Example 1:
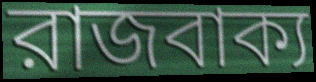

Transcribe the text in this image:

রাজবাক্য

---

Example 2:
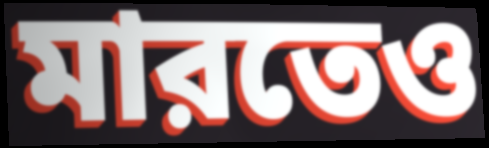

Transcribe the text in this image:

মারতেও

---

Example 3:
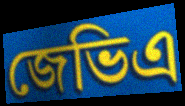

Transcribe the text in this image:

জেভিএ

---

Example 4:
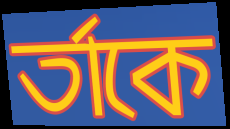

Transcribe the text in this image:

র্তাকে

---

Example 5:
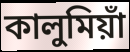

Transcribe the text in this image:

কালুমিয়াঁ